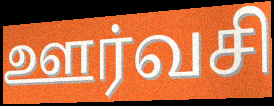
ஊர்வசி